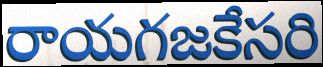
రాయగజకేసరి